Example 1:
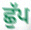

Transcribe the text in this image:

ਛੁੱਪ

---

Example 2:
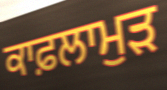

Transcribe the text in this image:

ਕਾਫ਼ਲਾਮੁੜ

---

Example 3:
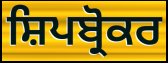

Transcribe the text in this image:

ਸ਼ਿਪਬ੍ਰੋਕਰ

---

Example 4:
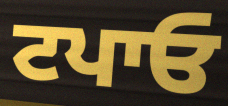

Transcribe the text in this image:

ਟਪਾਓ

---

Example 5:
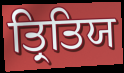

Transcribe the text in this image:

ਤ੍ਰਿਤਿਯ